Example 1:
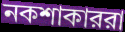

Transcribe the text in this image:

নকশাকাররা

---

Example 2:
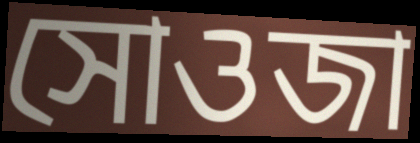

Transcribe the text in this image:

সোওজা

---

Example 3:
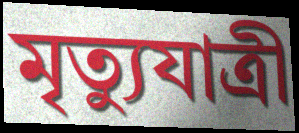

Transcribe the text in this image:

মৃত্যুযাত্রী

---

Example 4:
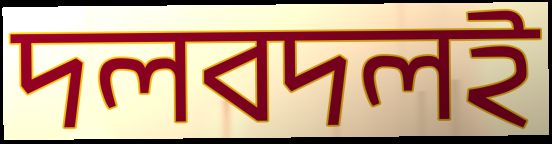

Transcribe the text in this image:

দলবদলই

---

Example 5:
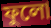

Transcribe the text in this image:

ফুলো